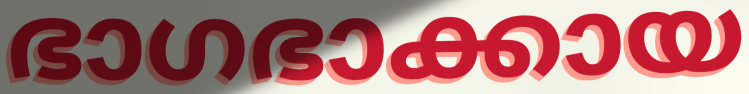
ഭാഗഭാക്കായ